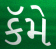
કૅમે